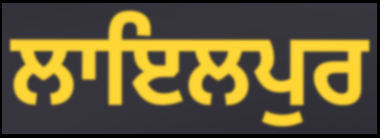
ਲਾਇਲਪੁਰ